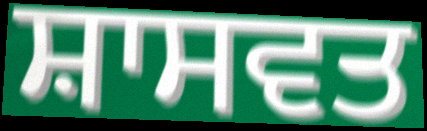
ਸ਼ਾਸਵਤ